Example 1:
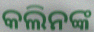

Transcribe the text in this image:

କଲିନଙ୍କ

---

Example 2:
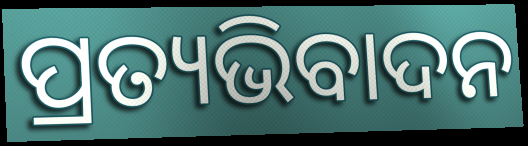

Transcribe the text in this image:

ପ୍ରତ୍ୟଭିବାଦନ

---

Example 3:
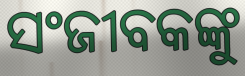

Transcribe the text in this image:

ସଂଜୀବକଙ୍କୁ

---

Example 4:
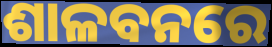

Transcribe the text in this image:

ଶାଳବନରେ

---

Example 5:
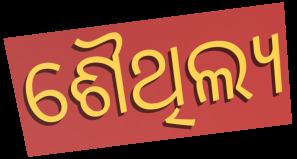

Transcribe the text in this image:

ଶୈଥିଲ୍ୟ